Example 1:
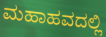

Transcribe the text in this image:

ಮಹಾಹವದಲ್ಲಿ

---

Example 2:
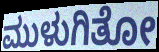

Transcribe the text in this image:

ಮುಳುಗಿತೋ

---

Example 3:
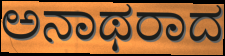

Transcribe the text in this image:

ಅನಾಥರಾದ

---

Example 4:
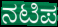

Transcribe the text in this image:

ನಟಿಪ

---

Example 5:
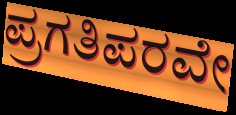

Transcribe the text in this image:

ಪ್ರಗತಿಪರವೇ